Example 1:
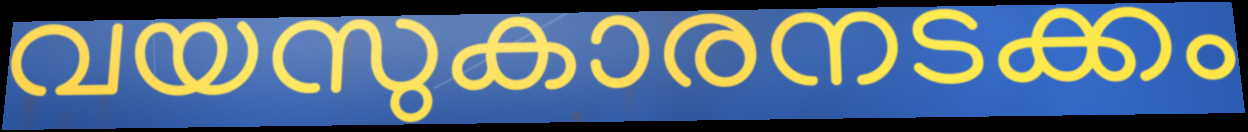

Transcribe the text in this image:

വയസുകാരനടക്കം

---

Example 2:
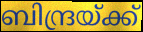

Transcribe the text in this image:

ബിന്ദ്രയ്ക്ക്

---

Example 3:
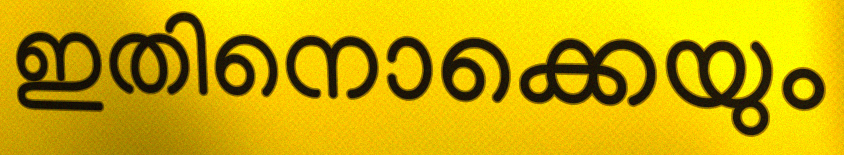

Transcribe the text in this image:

ഇതിനൊക്കെയും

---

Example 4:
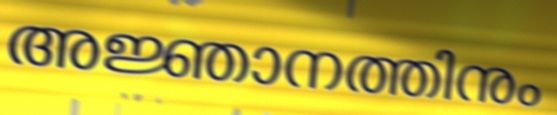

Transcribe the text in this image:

അജ്ഞാനത്തിനും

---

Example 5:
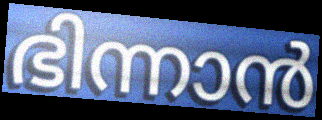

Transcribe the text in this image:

ഭിന്നാൻ